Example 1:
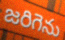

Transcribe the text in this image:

జరిగెను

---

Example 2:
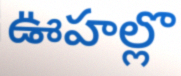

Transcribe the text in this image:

ఊహల్లొ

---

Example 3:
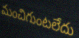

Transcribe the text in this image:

మంచిగుంటలేదు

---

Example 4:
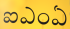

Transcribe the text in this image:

ఐఎంఏ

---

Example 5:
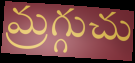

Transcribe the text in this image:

మ్రగ్గుచు